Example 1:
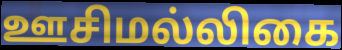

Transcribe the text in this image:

ஊசிமல்லிகை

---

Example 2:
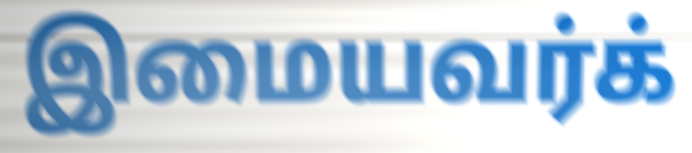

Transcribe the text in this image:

இமையவர்க்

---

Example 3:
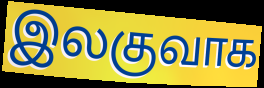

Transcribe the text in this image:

இலகுவாக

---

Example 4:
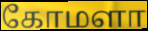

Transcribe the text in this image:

கோமளா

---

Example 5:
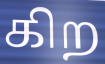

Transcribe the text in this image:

கிற